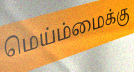
மெய்ம்மைக்கு